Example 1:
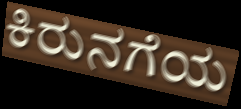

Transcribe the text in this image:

ಕಿರುನಗೆಯ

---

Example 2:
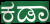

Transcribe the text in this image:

ಕಡಾ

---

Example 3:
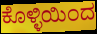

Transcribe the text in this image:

ಕೊಳ್ಳಿಯಿಂದ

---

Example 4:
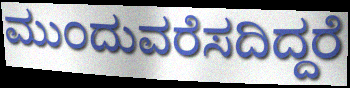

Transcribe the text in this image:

ಮುಂದುವರೆಸದಿದ್ದರೆ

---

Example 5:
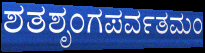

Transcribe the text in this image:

ಶತಶೃಂಗಪರ್ವತಮಂ